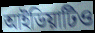
আইডিয়াটিও